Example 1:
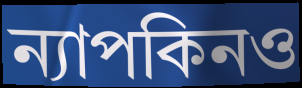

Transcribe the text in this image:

ন্যাপকিনও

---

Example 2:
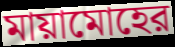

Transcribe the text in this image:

মায়ামোহের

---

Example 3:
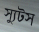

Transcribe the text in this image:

স্যুটস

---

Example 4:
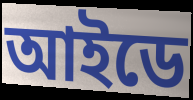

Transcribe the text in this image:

আইডে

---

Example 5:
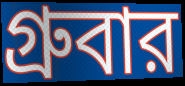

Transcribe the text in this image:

গ্রুবার